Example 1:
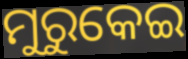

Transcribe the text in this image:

ମୁରୁକେଇ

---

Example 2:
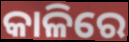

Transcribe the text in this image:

କାଳିରେ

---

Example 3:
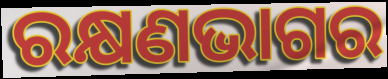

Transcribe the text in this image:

ରକ୍ଷଣଭାଗର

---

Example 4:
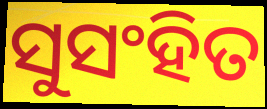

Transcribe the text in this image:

ସୁସଂହିତ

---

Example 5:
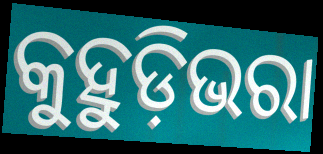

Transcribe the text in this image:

କୁହୁଡ଼ିଭରା